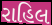
રાહિલ